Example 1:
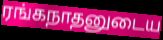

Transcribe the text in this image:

ரங்கநாதனுடைய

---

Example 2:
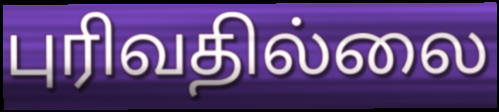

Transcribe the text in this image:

புரிவதில்லை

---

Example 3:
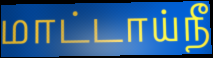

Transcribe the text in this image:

மாட்டாய்நீ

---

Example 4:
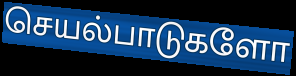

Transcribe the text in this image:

செயல்பாடுகளோ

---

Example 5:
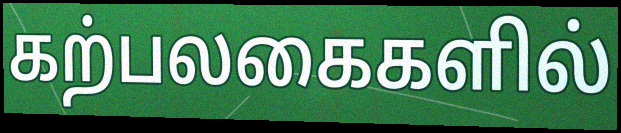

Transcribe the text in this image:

கற்பலகைகளில்